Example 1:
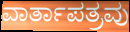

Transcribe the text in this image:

ವಾರ್ತಾಪತ್ರವು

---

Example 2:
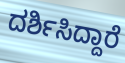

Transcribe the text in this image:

ದರ್ಶಿಸಿದ್ದಾರೆ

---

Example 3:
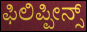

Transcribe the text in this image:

ಫಿಲಿಪ್ಪೀನ್ಸ್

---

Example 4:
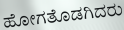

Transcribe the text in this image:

ಹೋಗತೊಡಗಿದರು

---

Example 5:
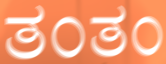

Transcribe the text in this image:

ತಂತಂ